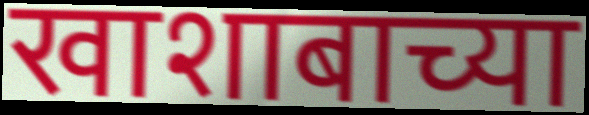
खाशाबाच्या